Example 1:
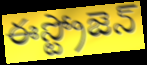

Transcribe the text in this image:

ఈస్ట్రోజెన్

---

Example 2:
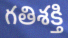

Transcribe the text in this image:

గతిశక్తి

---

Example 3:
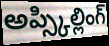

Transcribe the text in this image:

అప్స్కిల్లింగ్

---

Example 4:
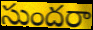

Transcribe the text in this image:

సుందరా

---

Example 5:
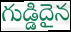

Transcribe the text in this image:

గుడ్డిదైన